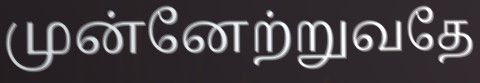
முன்னேற்றுவதே